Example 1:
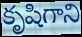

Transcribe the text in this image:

కృషిగాని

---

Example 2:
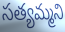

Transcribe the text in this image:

సత్యమ్మని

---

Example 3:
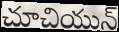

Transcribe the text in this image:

చూచియున్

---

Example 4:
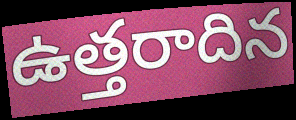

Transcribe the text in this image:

ఉత్తరాదిన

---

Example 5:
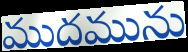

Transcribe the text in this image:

ముదమును